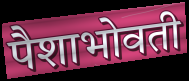
पैशाभोवती